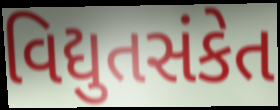
વિદ્યુતસંકેત